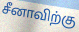
சீனாவிற்கு